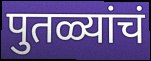
पुतळ्यांचं